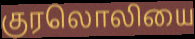
குரலொலியை